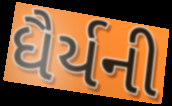
ધૈર્યની